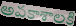
అవకాశాలకి